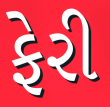
ફેરી